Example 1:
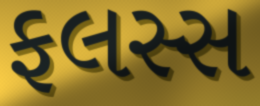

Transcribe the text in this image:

ફલસ્સ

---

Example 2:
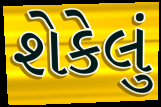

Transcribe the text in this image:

શેકેલું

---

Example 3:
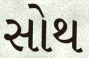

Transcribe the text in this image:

સોથ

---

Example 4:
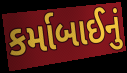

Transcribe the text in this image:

કર્માબાઈનું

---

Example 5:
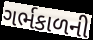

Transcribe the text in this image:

ગર્ભકાળની